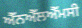
ਐੱਨਐੱਲਐੱਮਸੀ